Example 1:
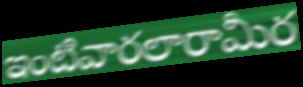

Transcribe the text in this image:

ఇంటివారలారామీర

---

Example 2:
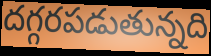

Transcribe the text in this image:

దగ్గరపడుతున్నది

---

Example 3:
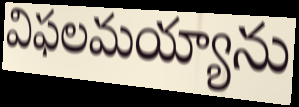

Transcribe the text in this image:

విఫలమయ్యాను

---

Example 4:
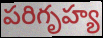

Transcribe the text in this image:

పరిగృహ్య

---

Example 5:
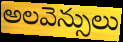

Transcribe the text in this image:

అలవెన్సులు